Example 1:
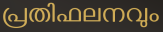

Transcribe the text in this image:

പ്രതിഫലനവും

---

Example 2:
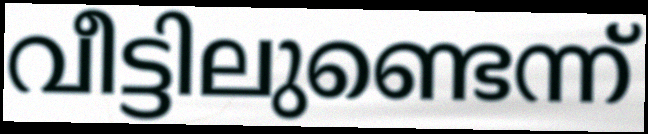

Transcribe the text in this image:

വീട്ടിലുണ്ടെന്ന്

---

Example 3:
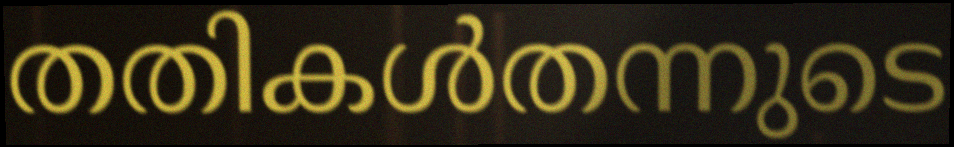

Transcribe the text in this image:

തതികൾതന്നുടെ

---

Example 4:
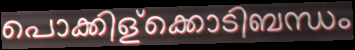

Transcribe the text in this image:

പൊക്കിള്ക്കൊടിബന്ധം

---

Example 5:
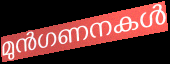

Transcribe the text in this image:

മുൻഗണനകൾ